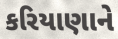
કરિયાણાને